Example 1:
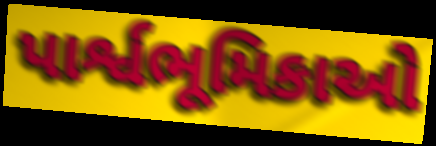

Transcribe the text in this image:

પાર્શ્વભૂમિકાઓ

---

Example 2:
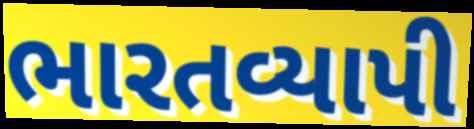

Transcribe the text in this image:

ભારતવ્યાપી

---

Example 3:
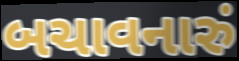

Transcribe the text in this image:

બચાવનારું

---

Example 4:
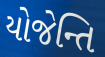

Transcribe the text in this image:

યોજેન્તિ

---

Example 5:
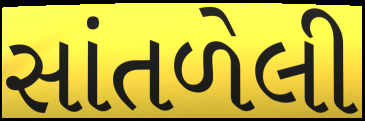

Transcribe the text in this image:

સાંતળેલી